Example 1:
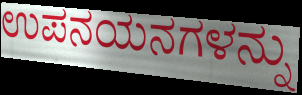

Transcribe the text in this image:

ಉಪನಯನಗಳನ್ನು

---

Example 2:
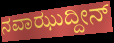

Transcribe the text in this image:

ನವಾಝುದ್ದೀನ್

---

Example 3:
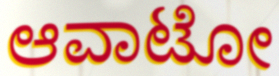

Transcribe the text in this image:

ಆವಾಟೋ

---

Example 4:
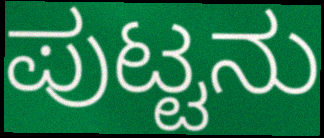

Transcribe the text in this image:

ಪುಟ್ಟನು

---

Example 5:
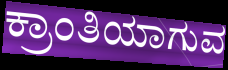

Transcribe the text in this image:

ಕ್ರಾಂತಿಯಾಗುವ